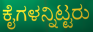
ಕೈಗಳನ್ನಿಟ್ಟರು